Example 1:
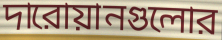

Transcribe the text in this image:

দারোয়ানগুলোর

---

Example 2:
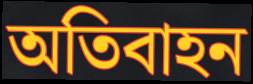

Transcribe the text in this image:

অতিবাহন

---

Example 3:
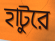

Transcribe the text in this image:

হাটুরে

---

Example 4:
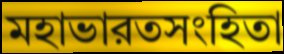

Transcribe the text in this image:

মহাভারতসংহিতা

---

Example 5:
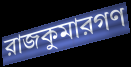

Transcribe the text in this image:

রাজকুমারগণ